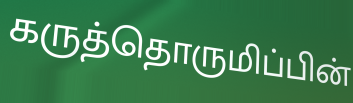
கருத்தொருமிப்பின்